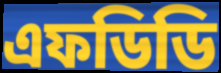
এফডিডি